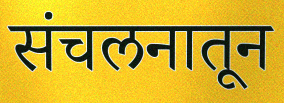
संचलनातून